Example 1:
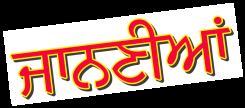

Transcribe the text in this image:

ਜਾਨਣੀਆਂ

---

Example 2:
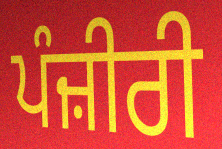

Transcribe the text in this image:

ਪੰਜ਼ੀਰੀ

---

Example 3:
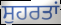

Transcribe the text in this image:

ਸੁਹਰਤਾਂ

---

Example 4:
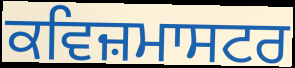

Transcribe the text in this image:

ਕਵਿਜ਼ਮਾਸਟਰ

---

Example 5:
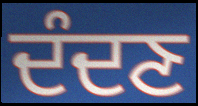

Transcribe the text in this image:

ਦੰਦਣ